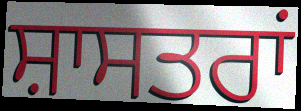
ਸ਼ਾਸਤਰਾਂ